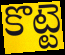
కొట్టె